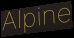
Alpine